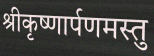
श्रीकृष्णार्पणमस्तु